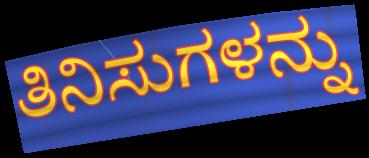
ತಿನಿಸುಗಳನ್ನು